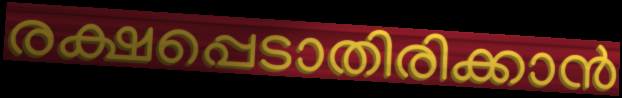
രക്ഷപ്പെടാതിരിക്കാൻ